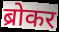
ब्रोकर